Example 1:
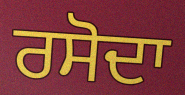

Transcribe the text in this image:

ਰਸੋਦਾ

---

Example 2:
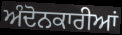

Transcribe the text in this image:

ਅੰਦੋਨਕਾਰੀਆਂ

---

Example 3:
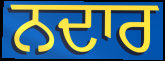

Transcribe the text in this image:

ਨਦਾਰ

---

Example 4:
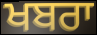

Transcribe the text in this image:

ਖਬਰਾ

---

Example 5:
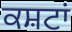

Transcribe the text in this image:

ਕਸ਼ਟਾਂ